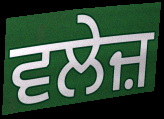
ਵਲੇਜ਼